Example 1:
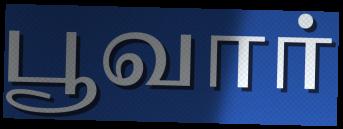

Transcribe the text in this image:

பூவார்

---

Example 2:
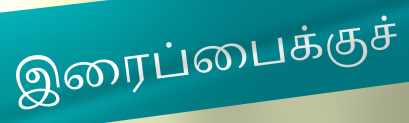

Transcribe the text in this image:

இரைப்பைக்குச்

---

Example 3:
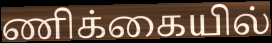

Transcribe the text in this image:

ணிக்கையில்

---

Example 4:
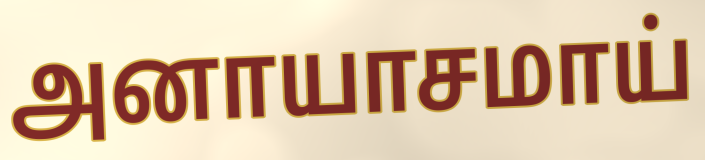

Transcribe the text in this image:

அனாயாசமாய்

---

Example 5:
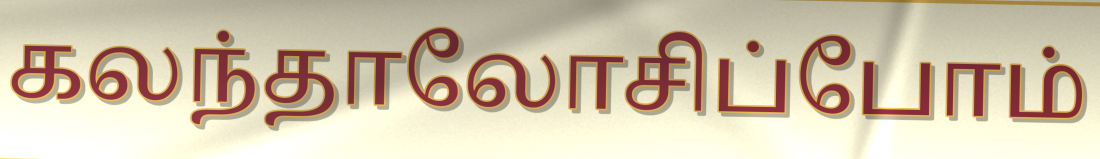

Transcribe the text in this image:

கலந்தாலோசிப்போம்